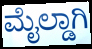
ಮೈಲ್ಡಾಗಿ